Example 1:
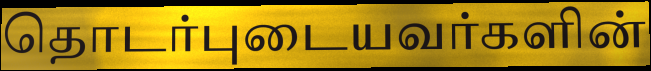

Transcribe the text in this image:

தொடர்புடையவர்களின்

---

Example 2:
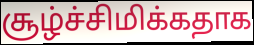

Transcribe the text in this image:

சூழ்ச்சிமிக்கதாக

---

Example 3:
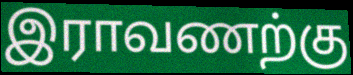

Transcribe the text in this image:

இராவணற்கு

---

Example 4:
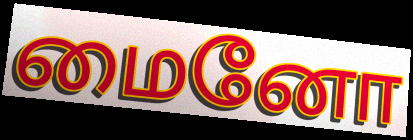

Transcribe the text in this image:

மைனோ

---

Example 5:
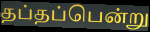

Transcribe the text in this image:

தப்தப்பென்று